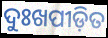
ଦୁଃଖପୀଡ଼ିତ